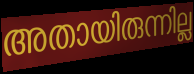
അതായിരുന്നില്ല